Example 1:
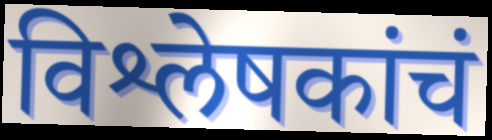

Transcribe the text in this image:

विश्लेषकांचं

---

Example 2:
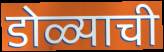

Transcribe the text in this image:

डोळ्याची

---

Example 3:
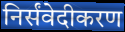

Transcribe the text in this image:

निर्संवेदीकरण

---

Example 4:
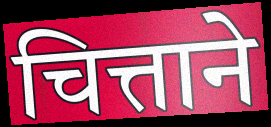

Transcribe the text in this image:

चित्ताने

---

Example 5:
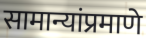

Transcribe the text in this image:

सामान्यांप्रमाणे